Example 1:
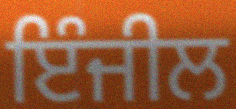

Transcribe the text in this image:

ਇੰਜੀਲ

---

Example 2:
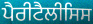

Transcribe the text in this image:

ਪੈਰੀਟੈਲੀਸਿਸ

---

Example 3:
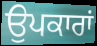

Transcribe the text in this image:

ਉਪਕਾਰਾਂ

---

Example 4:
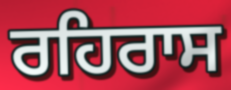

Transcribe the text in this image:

ਰਹਿਰਾਸ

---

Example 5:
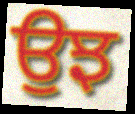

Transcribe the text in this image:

ਉਝ